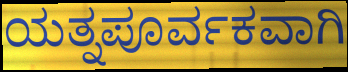
ಯತ್ನಪೂರ್ವಕವಾಗಿ